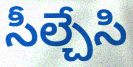
సీల్చేసి